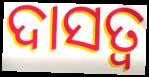
ଦାସତ୍ୱ